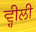
ਵ੍ਹੀਲੀ